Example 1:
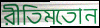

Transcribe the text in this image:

রীতিমতোন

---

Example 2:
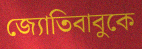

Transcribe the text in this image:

জ্যোতিবাবুকে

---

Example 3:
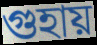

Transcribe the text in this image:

গুহায়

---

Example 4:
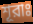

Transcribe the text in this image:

শূরাঃ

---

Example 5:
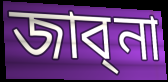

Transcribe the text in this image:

জাব্‌না